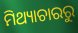
ମିଥ୍ୟାଚାରରୁ